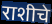
राशीचे